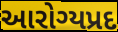
આરોગ્યપ્રદ